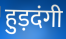
हुड़दंगी